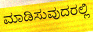
ಮಾಡಿಸುವುದರಲ್ಲಿ